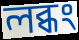
লব্ধং